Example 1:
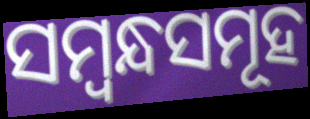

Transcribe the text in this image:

ସମ୍ୱନ୍ଧସମୂହ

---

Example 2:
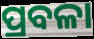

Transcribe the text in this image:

ପ୍ରବଳା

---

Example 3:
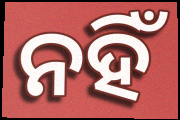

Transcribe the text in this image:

ନହିଁ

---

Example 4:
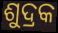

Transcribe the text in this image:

ଶୁଦ୍ରକ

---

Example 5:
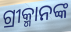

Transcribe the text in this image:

ଗ୍ରୀକ୍ମାନଙ୍କ